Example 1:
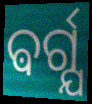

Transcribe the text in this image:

ଵର୍ଗ୍ଯ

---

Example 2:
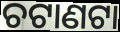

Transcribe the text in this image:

ଚଟାଣଟା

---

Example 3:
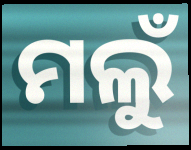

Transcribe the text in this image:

ମଲୁଁ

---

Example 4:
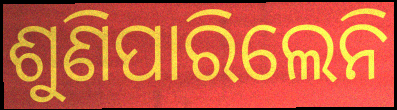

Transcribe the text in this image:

ଶୁଣିପାରିଲେନି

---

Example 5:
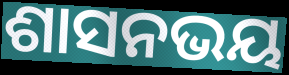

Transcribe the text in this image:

ଶାସନଭୟ